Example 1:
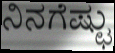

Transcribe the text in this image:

ನಿನಗೆಷ್ಟು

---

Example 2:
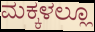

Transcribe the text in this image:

ಮಕ್ಕಳಲ್ಲೂ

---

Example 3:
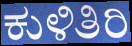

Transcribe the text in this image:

ಕುಳಿತಿರಿ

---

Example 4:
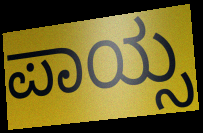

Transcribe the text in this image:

ಪಾಯ್ಸ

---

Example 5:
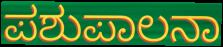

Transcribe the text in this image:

ಪಶುಪಾಲನಾ